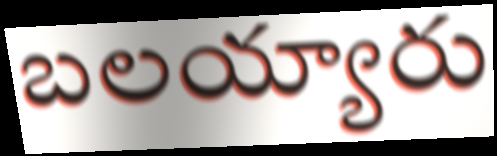
బలయ్యారు